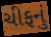
ચીફનું